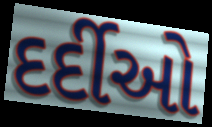
દર્દીઓ